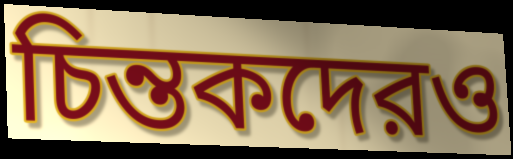
চিন্তকদেরও